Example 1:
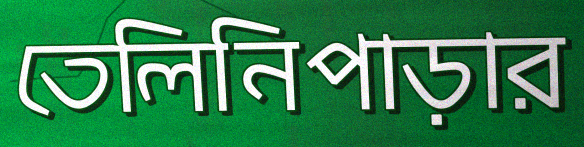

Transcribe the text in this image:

তেলিনিপাড়ার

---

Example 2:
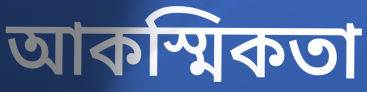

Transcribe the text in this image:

আকস্মিকতা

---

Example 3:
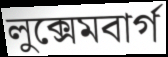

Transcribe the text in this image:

লুক্সেমবার্গ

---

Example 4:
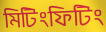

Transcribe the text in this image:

মিটিংফিটিং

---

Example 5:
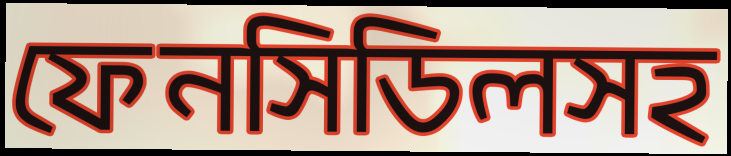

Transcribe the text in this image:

ফেনসিডিলসহ